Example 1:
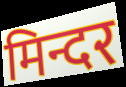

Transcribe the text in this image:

मिन्दर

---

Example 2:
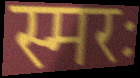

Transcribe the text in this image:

स्मरः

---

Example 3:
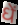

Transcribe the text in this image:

धें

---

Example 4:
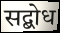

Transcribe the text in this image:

सद्बोध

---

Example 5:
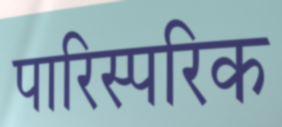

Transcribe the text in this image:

पारिस्परिक